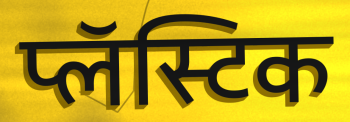
प्लॅस्टिक